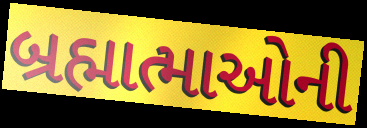
બ્રહ્માત્માઓની